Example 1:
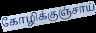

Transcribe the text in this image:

கோழிக்குஞ்சாய்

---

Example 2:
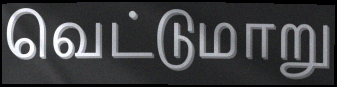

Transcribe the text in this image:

வெட்டுமாறு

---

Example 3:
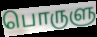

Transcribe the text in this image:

பொருளு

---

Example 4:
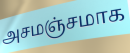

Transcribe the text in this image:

அசமஞ்சமாக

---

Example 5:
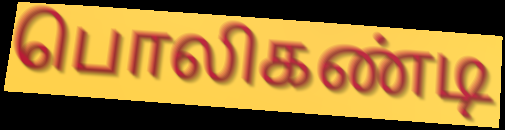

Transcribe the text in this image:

பொலிகண்டி